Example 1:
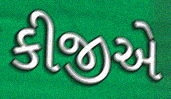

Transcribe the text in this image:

કીજીએ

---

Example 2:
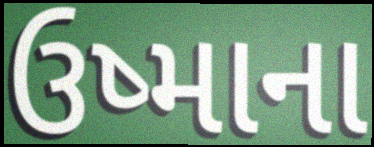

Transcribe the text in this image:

ઉષ્માના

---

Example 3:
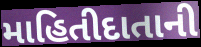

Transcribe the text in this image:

માહિતીદાતાની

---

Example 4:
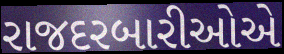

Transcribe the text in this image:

રાજદરબારીઓએ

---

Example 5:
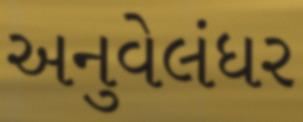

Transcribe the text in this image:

અનુવેલંધર